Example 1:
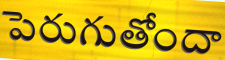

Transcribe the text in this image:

పెరుగుతోందా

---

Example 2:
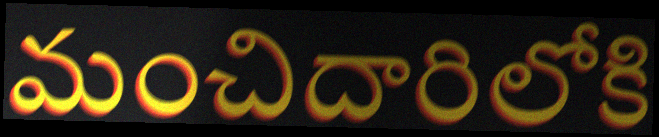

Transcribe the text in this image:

మంచిదారిలోకి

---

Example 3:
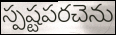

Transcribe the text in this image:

స్పష్టపరచెను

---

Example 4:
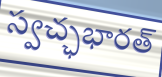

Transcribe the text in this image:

స్వచ్ఛభారత్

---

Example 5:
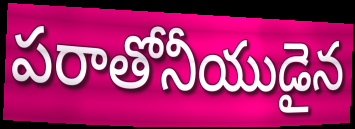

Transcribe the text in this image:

పరాతోనీయుడైన